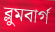
ব্লুমবার্গ